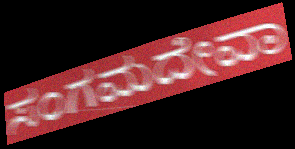
ಸಂಗಮದೇವಾ